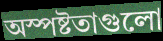
অস্পষ্টতাগুলো